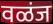
वळंज